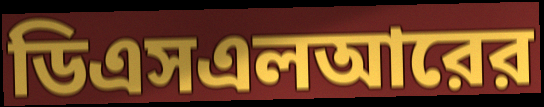
ডিএসএলআরের